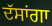
ਦੱਸਾਂਗਾ